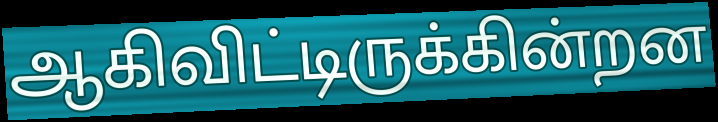
ஆகிவிட்டிருக்கின்றன